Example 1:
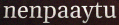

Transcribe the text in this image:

nenpaaytu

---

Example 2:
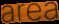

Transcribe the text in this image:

area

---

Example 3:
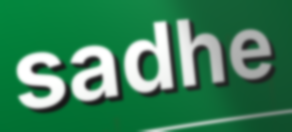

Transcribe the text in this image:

sadhe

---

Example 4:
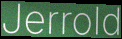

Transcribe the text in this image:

Jerrold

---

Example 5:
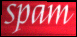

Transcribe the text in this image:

spam